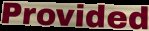
Provided